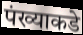
पंख्याकडे